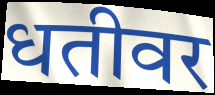
धतीवर